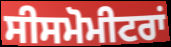
ਸੀਸਮੋਮੀਟਰਾਂ